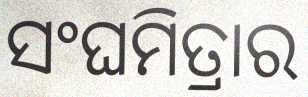
ସଂଘମିତ୍ରାର